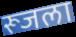
रूजला